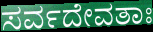
ಸರ್ವದೇವತಾಃ